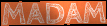
MADAM